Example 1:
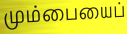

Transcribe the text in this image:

மும்பையைப்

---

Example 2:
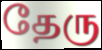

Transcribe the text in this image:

தேரு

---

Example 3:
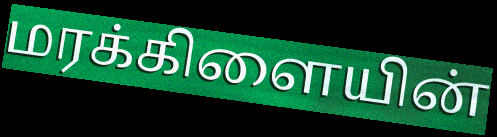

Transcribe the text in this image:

மரக்கிளையின்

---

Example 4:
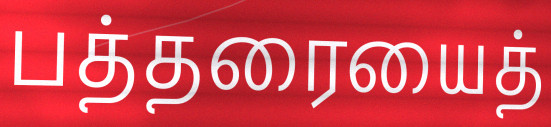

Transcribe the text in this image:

பத்தரையைத்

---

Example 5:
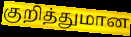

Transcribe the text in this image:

குறித்துமான